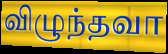
விழுந்தவா